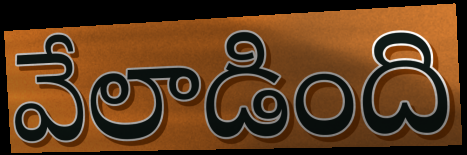
వేలాడింది